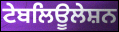
ਟੇਬਲਿਊਲੇਸ਼ਨ